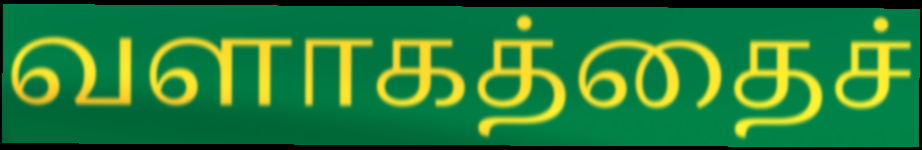
வளாகத்தைச்